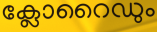
ക്ലോറൈഡും